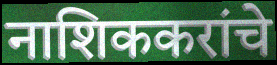
नाशिककरांचे